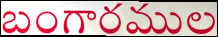
బంగారముల